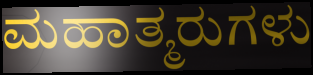
ಮಹಾತ್ಮರುಗಳು